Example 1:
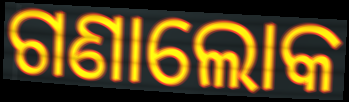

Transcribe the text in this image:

ଗଣାଲୋକ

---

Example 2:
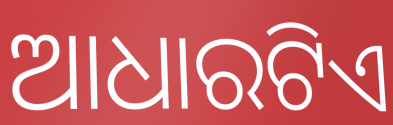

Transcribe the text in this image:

ଆଧାରଟିଏ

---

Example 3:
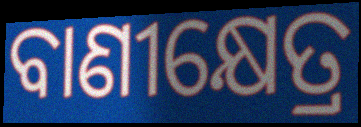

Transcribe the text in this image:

ବାଣୀକ୍ଷେତ୍ର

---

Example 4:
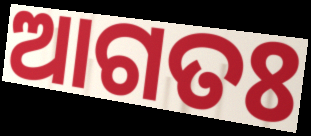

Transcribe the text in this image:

ଆଗତଃ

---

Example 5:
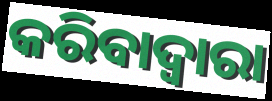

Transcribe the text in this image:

କରିବାଦ୍ବାରା